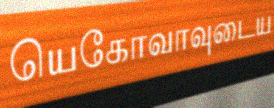
யெகோவாவுடைய